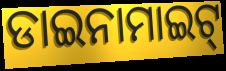
ଡାଇନାମାଇଟ୍